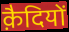
क़ैदियों